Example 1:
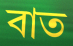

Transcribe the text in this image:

বাত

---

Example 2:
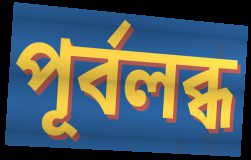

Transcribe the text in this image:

পূৰ্বলব্ধ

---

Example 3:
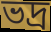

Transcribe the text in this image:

ভদ্ৰ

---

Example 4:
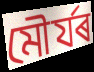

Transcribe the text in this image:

মৌৰ্যৰ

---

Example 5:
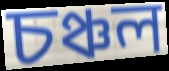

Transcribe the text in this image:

চঞ্চল